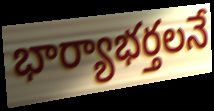
భార్యాభర్తలనే